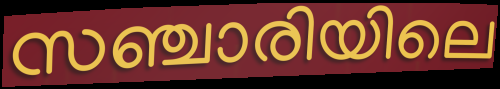
സഞ്ചാരിയിലെ